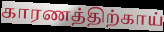
காரணத்திற்காய்